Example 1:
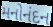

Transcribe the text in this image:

મનોનંદન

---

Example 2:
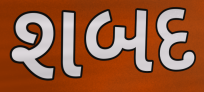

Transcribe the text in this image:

શબદ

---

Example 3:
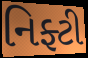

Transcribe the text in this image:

નિફ્ટી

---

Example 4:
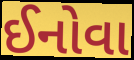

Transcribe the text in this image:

ઈનોવા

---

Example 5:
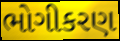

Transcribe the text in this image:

ભોગીકરણ